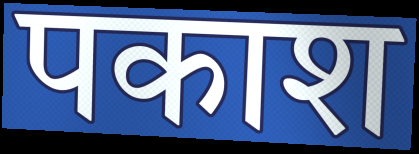
पकाश